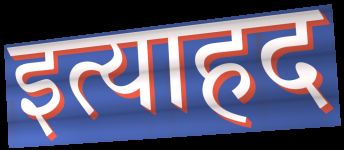
इत्याहद